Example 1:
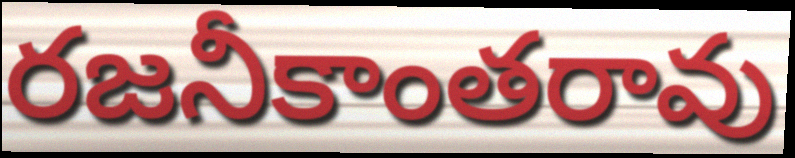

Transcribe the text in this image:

రజనీకాంతరావు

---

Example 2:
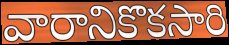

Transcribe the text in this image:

వారానికొకసారి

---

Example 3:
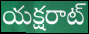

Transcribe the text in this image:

యక్షరాట్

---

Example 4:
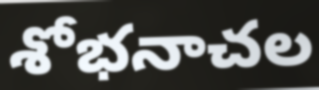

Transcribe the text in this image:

శోభనాచల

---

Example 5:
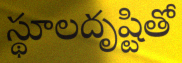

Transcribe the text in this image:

స్థూలదృష్టితో